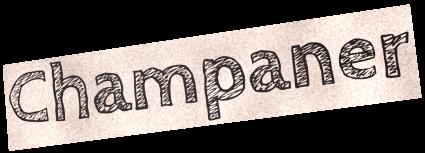
Champaner